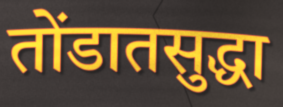
तोंडातसुद्धा